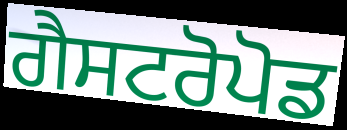
ਗੈਸਟਰੋਪੋਡ